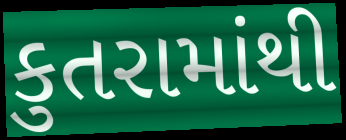
કુતરામાંથી